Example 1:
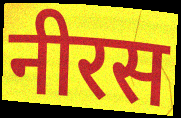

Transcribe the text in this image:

नीरस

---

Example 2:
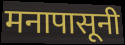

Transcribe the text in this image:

मनापासूनी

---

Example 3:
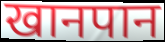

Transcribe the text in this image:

खानपान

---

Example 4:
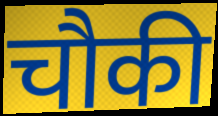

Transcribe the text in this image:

चौकी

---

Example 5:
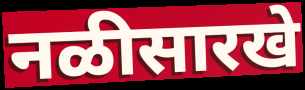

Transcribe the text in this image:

नळीसारखे